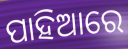
ପାହିଆରେ